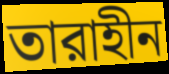
তারাহীন